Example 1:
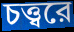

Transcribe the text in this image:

চত্ত্বরে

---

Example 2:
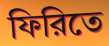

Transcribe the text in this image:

ফিরিতে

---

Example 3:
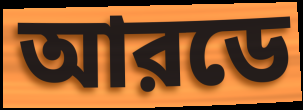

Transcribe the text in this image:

আরডে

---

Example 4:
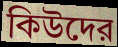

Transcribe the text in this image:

কিউদের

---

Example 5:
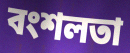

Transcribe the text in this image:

বংশলতা